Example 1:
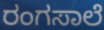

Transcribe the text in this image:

ರಂಗಸಾಲೆ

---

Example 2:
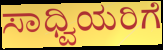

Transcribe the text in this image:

ಸಾಧ್ವಿಯರಿಗೆ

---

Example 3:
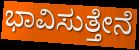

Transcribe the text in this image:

ಭಾವಿಸುತ್ತೇನೆ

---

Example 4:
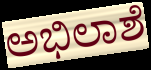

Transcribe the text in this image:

ಅಭಿಲಾಶೆ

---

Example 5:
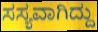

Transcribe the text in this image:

ಸಸ್ಯವಾಗಿದ್ದು